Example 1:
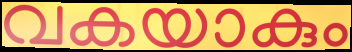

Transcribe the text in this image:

വകയാകും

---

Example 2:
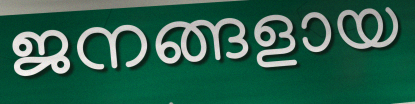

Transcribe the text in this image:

ജനങ്ങളായ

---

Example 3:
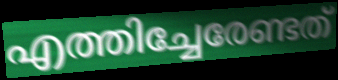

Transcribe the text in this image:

എത്തിച്ചേരേണ്ടത്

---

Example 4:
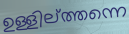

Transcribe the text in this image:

ഉള്ളില്ത്തന്നെ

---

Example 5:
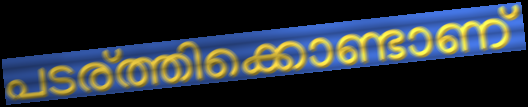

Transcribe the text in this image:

പടര്ത്തിക്കൊണ്ടാണ്